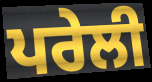
ਪਰੇਲੀ